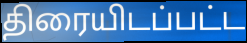
திரையிடப்பட்ட